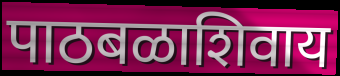
पाठबळाशिवाय